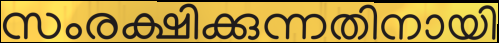
സംരക്ഷിക്കുന്നതിനായി